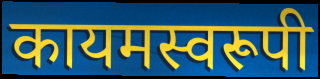
कायमस्वरूपी